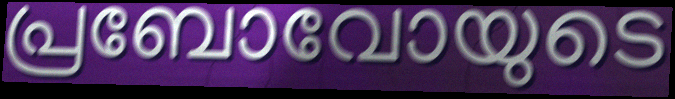
പ്രബോവോയുടെ